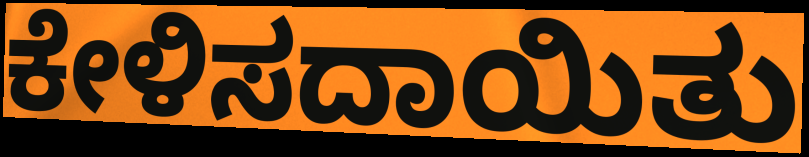
ಕೇಳಿಸದಾಯಿತು